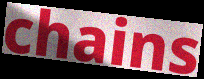
chains